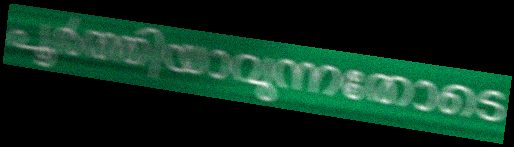
പൂർത്തിയാവുന്നതോടെ